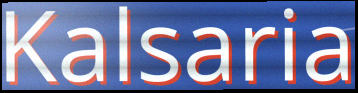
Kalsaria